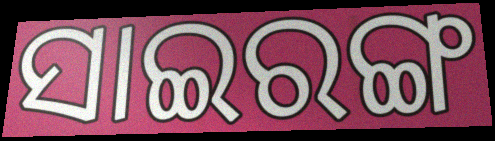
ସାଇରଙ୍ଗ